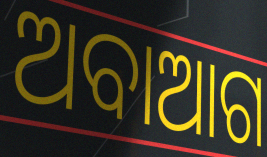
ଅବାଆଗ